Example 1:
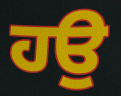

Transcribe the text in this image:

ਹਉ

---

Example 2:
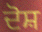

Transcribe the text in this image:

ਦੋਸ਼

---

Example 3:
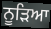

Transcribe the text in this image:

ਨੂੜਿਆ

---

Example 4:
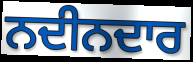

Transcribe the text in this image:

ਨਦੀਨਦਾਰ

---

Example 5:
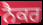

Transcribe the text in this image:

ਨੈਕਰ